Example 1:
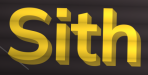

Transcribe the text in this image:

Sith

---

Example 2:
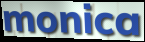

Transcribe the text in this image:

monica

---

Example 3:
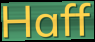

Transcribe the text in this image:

Haff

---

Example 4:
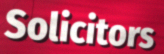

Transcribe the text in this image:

Solicitors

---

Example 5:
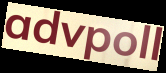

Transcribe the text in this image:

advpoll